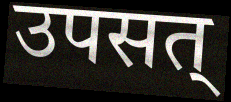
उपसत्